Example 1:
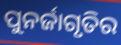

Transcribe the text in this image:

ପୁନର୍ଜାଗୃତିର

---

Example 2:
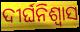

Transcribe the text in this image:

ଦୀର୍ଘନିଶ୍ୱାସ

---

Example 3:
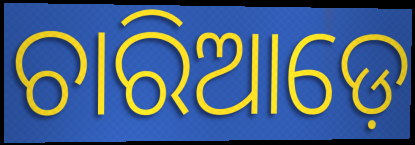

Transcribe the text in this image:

ଚାରିଆଡ଼େ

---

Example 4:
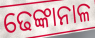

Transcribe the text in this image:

ଢେଙ୍କାନାଳ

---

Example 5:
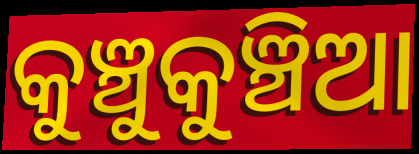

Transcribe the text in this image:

କୁଞ୍ଚୁକୁଞ୍ଚିଆ